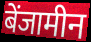
बेंजामीन